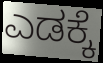
ಎಡಕ್ಕೆ